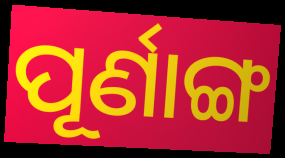
ପୂର୍ଣାଙ୍ଗ